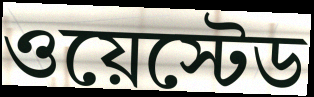
ওয়েস্টেড